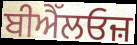
ਬੀਐੱਲਓਜ਼